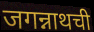
जगन्नाथची